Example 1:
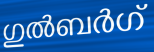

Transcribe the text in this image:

ഗുൽബർഗ്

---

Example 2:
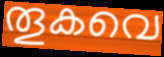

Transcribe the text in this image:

തൂകവെ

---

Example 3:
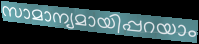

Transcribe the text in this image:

സാമാന്യമായിപ്പറയാം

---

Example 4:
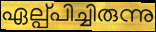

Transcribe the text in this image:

ഏല്പ്പിച്ചിരുന്നു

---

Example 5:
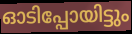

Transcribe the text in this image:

ഓടിപ്പോയിട്ടും